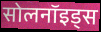
सोलनॉइड्स